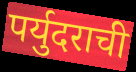
पर्युदराची